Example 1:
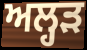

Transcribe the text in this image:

ਅਲ੍ਹੜ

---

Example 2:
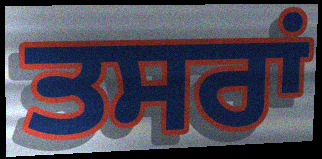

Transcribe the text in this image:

ਤਸਰਾਂ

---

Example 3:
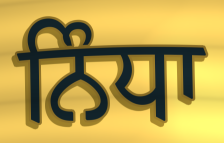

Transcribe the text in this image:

ਨਿੰਧਾ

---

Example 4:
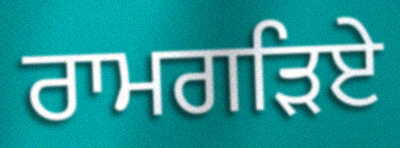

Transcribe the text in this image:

ਰਾਮਗੜਿਏ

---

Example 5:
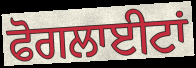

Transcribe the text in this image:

ਫੋਗਲਾਈਟਾਂ